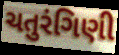
ચતુરંગિણી